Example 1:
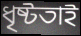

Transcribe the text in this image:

ধৃষ্টতাই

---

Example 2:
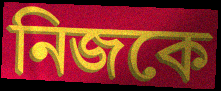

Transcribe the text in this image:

নিজকে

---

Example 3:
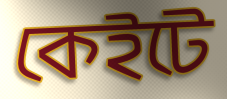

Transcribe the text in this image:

কেইটে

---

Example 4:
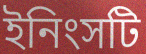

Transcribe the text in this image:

ইনিংসটি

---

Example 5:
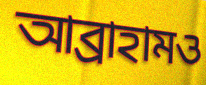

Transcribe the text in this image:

আব্রাহামও